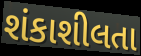
શંકાશીલતા